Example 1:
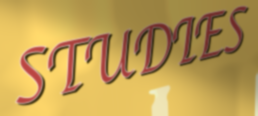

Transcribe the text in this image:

STUDIES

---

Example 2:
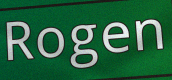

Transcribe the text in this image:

Rogen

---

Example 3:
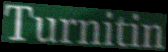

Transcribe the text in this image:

Turnitin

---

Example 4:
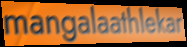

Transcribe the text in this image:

mangalaathlekar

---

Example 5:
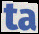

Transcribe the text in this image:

ta